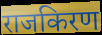
राजकिरण